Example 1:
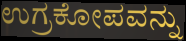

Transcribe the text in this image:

ಉಗ್ರಕೋಪವನ್ನು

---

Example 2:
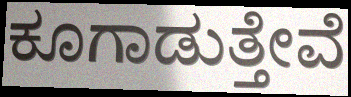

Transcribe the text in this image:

ಕೂಗಾಡುತ್ತೇವೆ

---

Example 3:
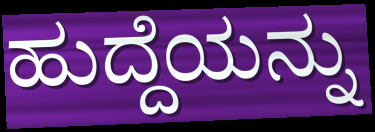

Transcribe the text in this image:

ಹುದ್ದೆಯನ್ನು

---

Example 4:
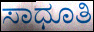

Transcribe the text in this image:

ಸಾಧೂತಿ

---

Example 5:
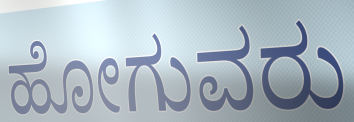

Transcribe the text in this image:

ಹೋಗುವರು